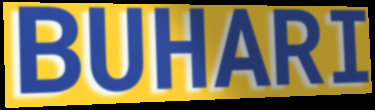
BUHARI